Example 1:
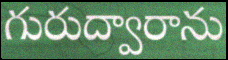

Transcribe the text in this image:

గురుద్వారాను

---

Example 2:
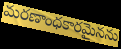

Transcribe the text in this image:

మరణాంధకారమైనను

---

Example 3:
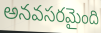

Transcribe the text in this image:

అనవసరమైంది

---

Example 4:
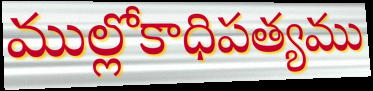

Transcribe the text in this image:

ముల్లోకాధిపత్యము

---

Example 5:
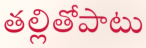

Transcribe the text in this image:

తల్లితోపాటు